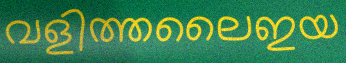
വളിത്തലൈഇയ